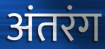
अंतरंग